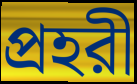
প্রহরী